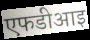
एफडीआइ